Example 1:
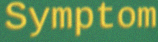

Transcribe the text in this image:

Symptom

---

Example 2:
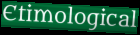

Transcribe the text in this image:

Etimological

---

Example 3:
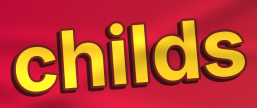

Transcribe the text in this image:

childs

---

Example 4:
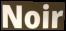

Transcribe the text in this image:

Noir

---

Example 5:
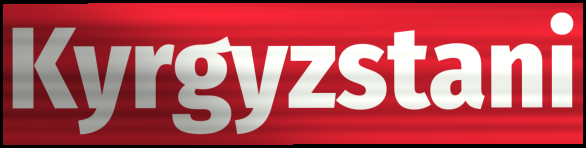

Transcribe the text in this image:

Kyrgyzstani